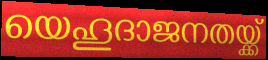
യെഹൂദാജനതയ്ക്ക്